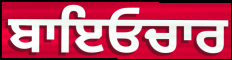
ਬਾਇਓਚਾਰ